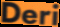
Deri